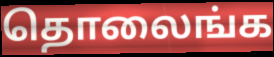
தொலைங்க